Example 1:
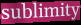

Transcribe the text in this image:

sublimity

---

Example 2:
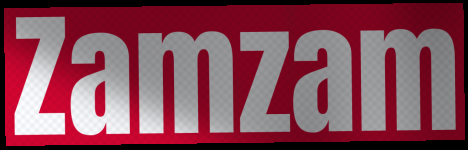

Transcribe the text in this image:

Zamzam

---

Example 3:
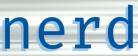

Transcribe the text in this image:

nerd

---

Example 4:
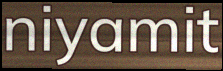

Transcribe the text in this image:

niyamit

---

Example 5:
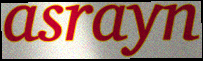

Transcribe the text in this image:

asrayn